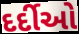
દર્દીઓ